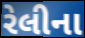
રેલીના